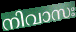
നിവാസഃ